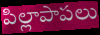
పిల్లాపాపలు